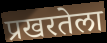
प्रखरतेला